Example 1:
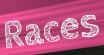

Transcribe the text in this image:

Races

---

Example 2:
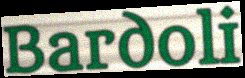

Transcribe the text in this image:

Bardoli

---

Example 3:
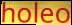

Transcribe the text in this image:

holeo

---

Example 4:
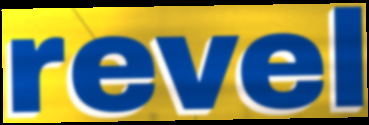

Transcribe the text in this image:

revel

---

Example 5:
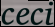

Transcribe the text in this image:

ceci